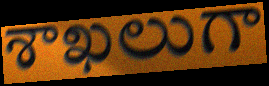
శాఖలుగా